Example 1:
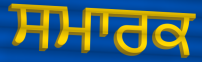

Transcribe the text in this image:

ਸਮਾਰਕ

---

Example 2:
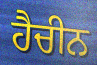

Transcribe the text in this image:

ਹੈਚੀਨ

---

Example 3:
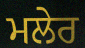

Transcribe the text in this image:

ਮਲੇਰ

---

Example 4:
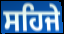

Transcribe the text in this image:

ਸਹਿਜੇ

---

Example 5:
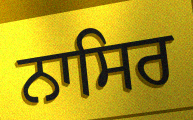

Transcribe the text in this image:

ਨਾਸਿਰ